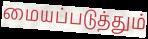
மையப்படுத்தும்